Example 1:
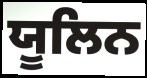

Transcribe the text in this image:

ਯੂਲਿਨ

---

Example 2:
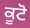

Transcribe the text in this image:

ਕੂਟੋ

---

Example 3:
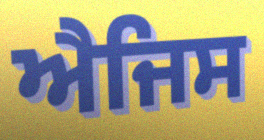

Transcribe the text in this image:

ਐਜਿਸ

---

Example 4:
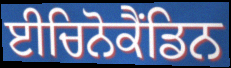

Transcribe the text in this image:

ਈਚਿਨੋਕੈਂਡਿਨ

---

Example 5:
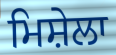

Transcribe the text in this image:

ਮਿਸ਼ੇਲਾ